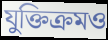
যুক্তিক্রমও